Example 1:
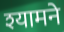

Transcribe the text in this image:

श्यामने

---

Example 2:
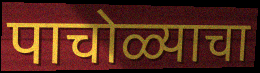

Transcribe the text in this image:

पाचोळ्याचा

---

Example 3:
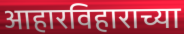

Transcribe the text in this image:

आहारविहाराच्या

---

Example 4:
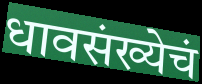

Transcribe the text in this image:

धावसंख्येचं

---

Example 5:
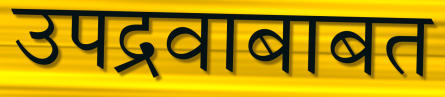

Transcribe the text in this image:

उपद्रवाबाबत